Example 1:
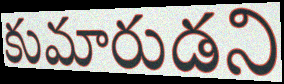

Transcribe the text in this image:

కుమారుడని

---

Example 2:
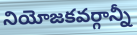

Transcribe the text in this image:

నియోజకవర్గాన్నీ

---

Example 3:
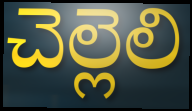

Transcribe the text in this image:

చెల్లెలి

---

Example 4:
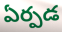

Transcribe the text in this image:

ఏర్పడ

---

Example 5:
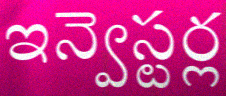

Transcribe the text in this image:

ఇన్వెస్టర్ల